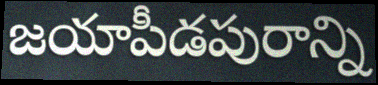
జయాపీడపురాన్ని